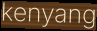
kenyang